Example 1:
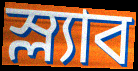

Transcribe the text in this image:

স্ল্যাব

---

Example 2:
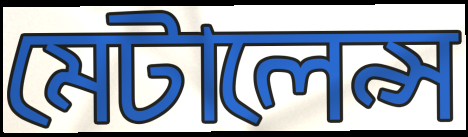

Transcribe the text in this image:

মেটালেন্স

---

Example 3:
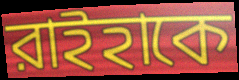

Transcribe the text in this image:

রাইহাকে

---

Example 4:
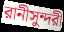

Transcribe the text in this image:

রানীসুন্দরী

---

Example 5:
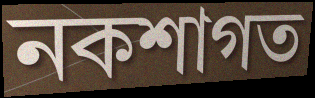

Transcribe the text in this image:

নকশাগত